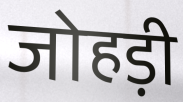
जोहड़ी